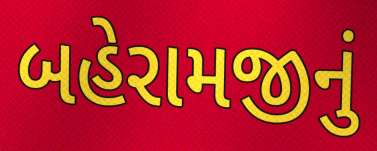
બહેરામજીનું